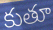
కుతూ